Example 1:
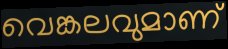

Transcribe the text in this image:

വെങ്കലവുമാണ്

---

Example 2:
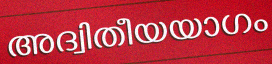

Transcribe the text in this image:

അദ്വിതീയയാഗം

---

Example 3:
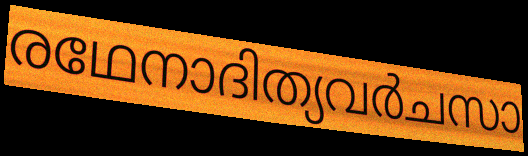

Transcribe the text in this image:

രഥേനാദിത്യവർചസാ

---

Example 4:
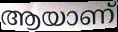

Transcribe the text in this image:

ആയാണ്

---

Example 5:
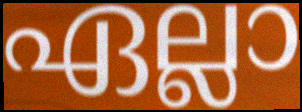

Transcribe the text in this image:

ഏല്ലാ